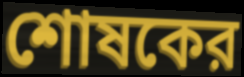
শোষকের